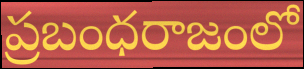
ప్రబంధరాజంలో